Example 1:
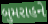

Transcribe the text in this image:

બુમરાહને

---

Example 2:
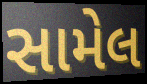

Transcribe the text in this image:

સામેલ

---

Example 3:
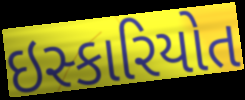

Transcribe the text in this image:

ઇસ્કારિયોત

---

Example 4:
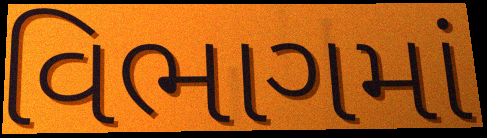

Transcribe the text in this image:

વિભાગમાં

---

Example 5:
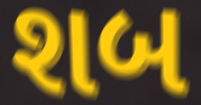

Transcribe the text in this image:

શબ